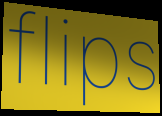
flips